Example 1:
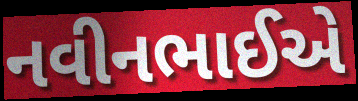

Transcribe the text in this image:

નવીનભાઈએ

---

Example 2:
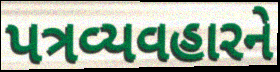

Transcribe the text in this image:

પત્રવ્યવહારને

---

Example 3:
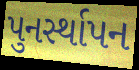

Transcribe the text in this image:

પુનર્સ્થાપન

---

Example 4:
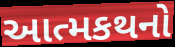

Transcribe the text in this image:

આત્મકથનો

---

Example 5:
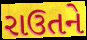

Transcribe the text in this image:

રાઉતને